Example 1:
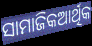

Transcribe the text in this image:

ସାମାଜିକଆର୍ଥିକ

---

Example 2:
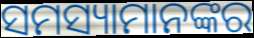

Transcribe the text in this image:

ସମସ୍ୟାମାନଙ୍କର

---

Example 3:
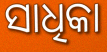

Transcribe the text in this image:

ସାଧିକା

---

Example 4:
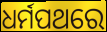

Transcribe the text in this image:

ଧର୍ମପଥରେ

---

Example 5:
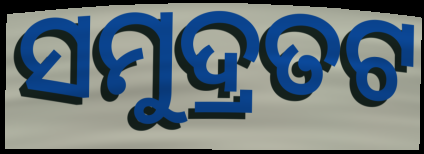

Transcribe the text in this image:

ସମୁଦ୍ରତଟ